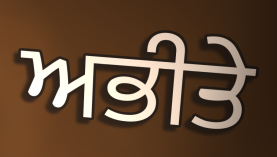
ਅਭੀਤੇ